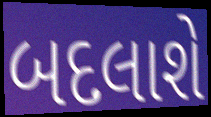
બદલાશે